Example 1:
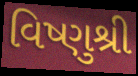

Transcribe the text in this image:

વિષ્ણુશ્રી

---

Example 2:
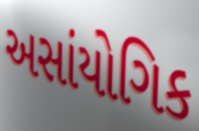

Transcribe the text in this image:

અસાંયોગિક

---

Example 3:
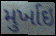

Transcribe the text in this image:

મુર્ખાઇ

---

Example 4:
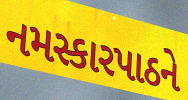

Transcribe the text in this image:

નમસ્કારપાઠને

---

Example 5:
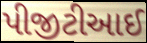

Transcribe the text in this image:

પીજીટીઆઈ